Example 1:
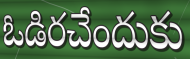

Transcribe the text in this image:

ఓడిరచేందుకు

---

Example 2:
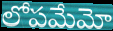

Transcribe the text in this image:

లోపమేమో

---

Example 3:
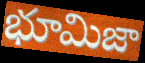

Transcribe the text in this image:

భూమిజా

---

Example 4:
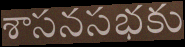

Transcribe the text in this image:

శాసనసభకు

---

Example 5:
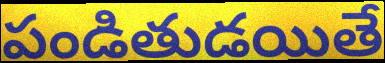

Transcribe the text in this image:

పండితుడయితే